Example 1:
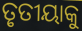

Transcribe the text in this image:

ତୃତୀୟାକୁ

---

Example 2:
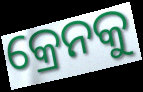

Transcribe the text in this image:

କ୍ରେନକୁ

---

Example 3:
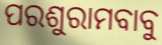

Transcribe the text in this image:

ପରଶୁରାମବାବୁ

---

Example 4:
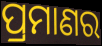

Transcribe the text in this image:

ପ୍ରମାଣର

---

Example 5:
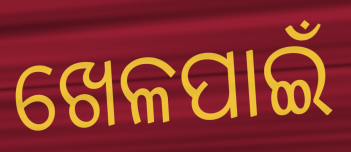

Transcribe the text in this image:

ଖେଳପାଇଁ